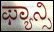
ಫ್ಯಾನ್ಸಿ